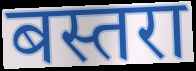
बस्तरा